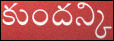
కుందన్కి